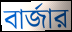
বার্জার